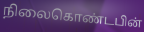
நிலைகொண்டபின்